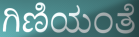
ಗಿಣಿಯಂತೆ